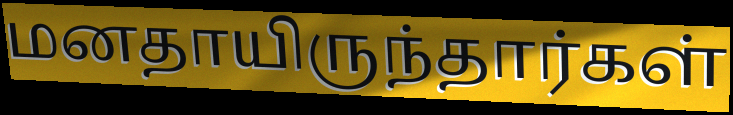
மனதாயிருந்தார்கள்